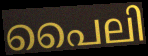
പൈലി